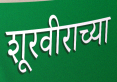
शूरवीराच्या